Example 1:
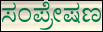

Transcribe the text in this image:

ಸಂಪ್ರೇಷಣ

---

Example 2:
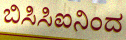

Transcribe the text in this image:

ಬಿಸಿಸಿಐನಿಂದ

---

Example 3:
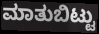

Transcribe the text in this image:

ಮಾತುಬಿಟ್ಟು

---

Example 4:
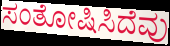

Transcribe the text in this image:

ಸಂತೋಷಿಸಿದೆವು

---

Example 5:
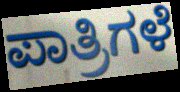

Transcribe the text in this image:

ಪಾತ್ರಿಗಳೆ